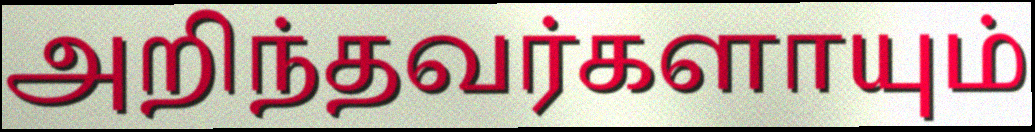
அறிந்தவர்களாயும்